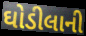
ઘોડીલાની